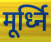
मूर्ध्नि